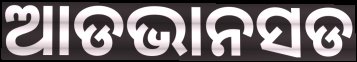
ଆଡଭାନସଡ